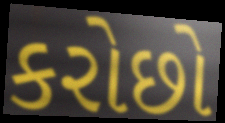
કરોછો